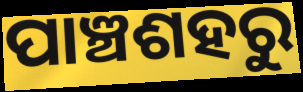
ପାଞ୍ଚଶହରୁ